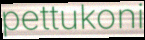
pettukoni